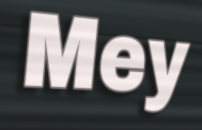
Mey